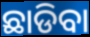
ଛାଡିବା